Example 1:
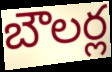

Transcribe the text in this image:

బౌలర్ల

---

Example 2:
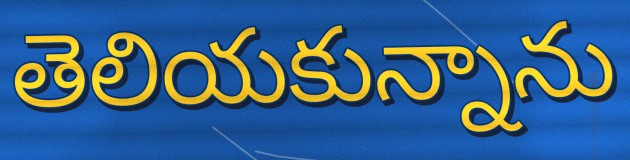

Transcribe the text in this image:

తెలియకున్నాను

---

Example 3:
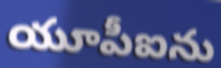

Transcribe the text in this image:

యూపీఐను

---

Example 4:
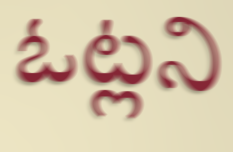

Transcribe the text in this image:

ఓట్లని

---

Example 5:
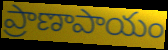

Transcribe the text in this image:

ప్రాణాపాయం